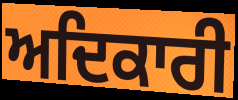
ਅਦਿਕਾਰੀ